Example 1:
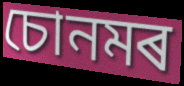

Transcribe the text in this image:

চোনমৰ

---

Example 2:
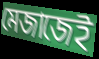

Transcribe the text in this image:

মেজাজেই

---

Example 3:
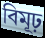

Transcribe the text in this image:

বিমূঢ়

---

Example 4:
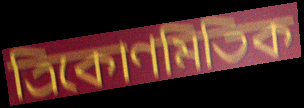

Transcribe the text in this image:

ত্ৰিকোণমিতিক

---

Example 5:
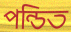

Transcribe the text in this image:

পন্ডিত